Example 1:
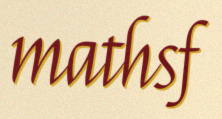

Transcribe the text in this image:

mathsf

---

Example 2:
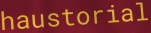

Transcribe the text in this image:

haustorial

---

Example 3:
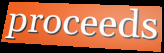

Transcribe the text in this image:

proceeds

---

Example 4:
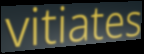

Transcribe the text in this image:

vitiates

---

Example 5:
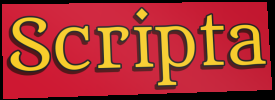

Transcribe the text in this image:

Scripta